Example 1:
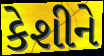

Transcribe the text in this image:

કેશીને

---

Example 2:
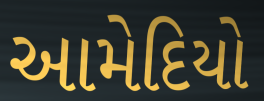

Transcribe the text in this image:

આમેદિયો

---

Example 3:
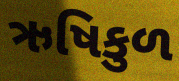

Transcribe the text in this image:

ઋષિકુળ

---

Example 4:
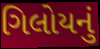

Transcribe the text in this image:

ગિલોયનું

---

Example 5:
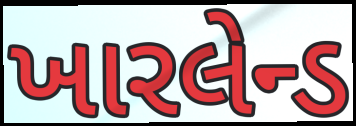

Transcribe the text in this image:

ખારલેન્ડ